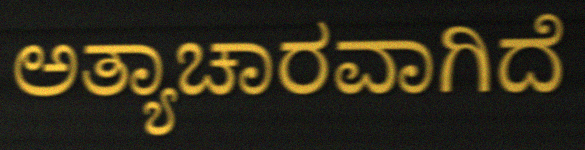
ಅತ್ಯಾಚಾರವಾಗಿದೆ